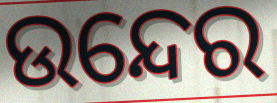
ଉନ୍ଦେର